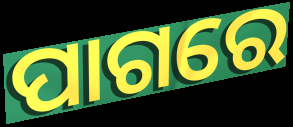
ପାଗରେ